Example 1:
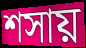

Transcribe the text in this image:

শসায়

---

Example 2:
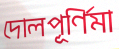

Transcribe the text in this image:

দোলপূর্ণিমা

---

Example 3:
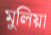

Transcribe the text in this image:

মুলিয়া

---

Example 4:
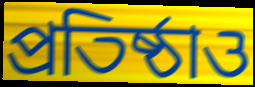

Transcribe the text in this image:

প্রতিষ্ঠাও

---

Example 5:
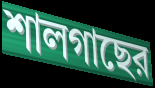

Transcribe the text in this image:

শালগাছের